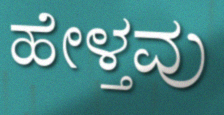
ಹೇಳ್ತವು